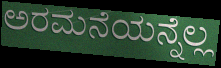
ಅರಮನೆಯನ್ನೆಲ್ಲ